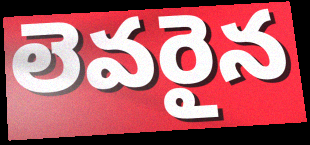
లెవరైన